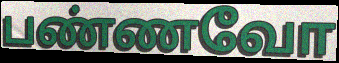
பண்ணவோ